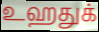
உஹதுக்